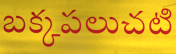
బక్కపలుచటి